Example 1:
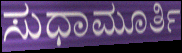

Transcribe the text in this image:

ಸುಧಾಮೂರ್ತಿ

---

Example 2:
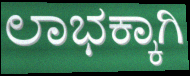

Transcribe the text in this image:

ಲಾಭಕ್ಕಾಗಿ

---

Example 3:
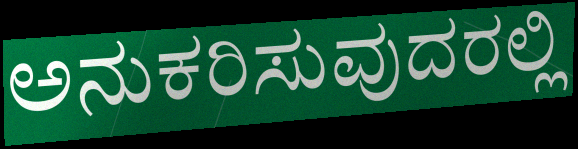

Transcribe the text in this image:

ಅನುಕರಿಸುವುದರಲ್ಲಿ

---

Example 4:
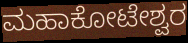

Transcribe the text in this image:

ಮಹಾಕೋಟೇಶ್ವರ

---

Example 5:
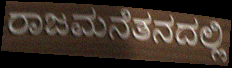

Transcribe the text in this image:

ರಾಜಮನೆತನದಲ್ಲಿ